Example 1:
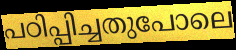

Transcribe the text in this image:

പഠിപ്പിച്ചതുപോലെ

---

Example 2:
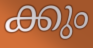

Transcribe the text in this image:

ക്കും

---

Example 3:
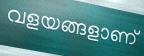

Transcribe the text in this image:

വളയങ്ങളാണ്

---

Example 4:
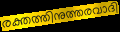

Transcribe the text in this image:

രക്തത്തിനുത്തരവാദി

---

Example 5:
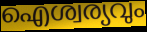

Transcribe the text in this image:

ഐശ്വര്യവും